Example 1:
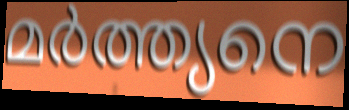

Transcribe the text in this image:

മർത്ത്യനെ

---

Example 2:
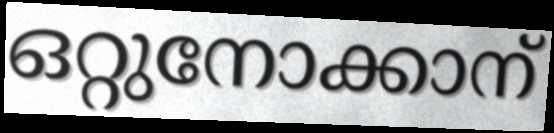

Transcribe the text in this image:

ഒറ്റുനോക്കാന്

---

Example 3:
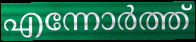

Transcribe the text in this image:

എന്നോർത്ത്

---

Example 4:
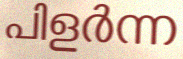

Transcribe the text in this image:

പിളർന്ന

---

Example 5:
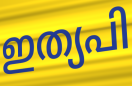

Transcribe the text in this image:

ഇത്യപി